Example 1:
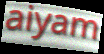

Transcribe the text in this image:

aiyam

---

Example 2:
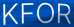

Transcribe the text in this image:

KFOR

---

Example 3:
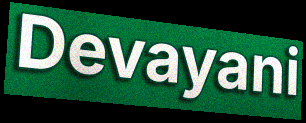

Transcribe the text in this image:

Devayani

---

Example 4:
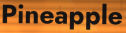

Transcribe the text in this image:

Pineapple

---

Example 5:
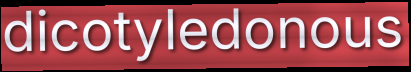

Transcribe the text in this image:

dicotyledonous